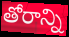
తోరాన్ని